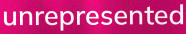
unrepresented